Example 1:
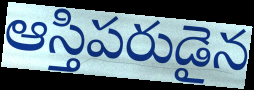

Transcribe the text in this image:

ఆస్తిపరుడైన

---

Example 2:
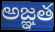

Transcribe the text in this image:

అజ్ఞత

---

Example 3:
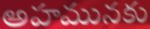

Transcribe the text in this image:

అహమునకు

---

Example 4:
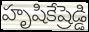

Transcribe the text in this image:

హృషికేష్రెడ్డి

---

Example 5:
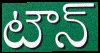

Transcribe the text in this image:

టౌన్